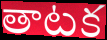
తాటక